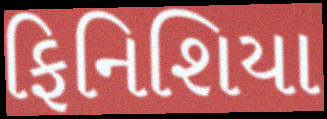
ફિનિશિયા